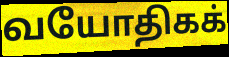
வயோதிகக்